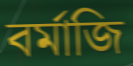
বর্মাজি